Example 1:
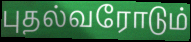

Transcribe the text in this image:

புதல்வரோடும்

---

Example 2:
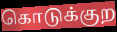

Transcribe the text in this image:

கொடுக்குற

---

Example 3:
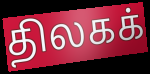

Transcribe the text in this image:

திலகக்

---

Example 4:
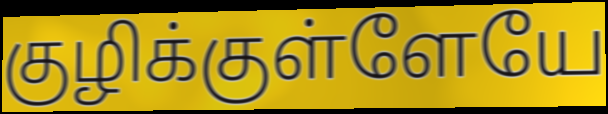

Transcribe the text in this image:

குழிக்குள்ளேயே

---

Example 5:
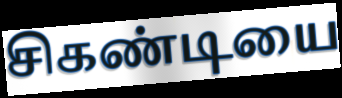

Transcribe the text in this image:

சிகண்டியை